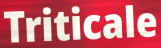
Triticale